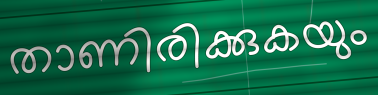
താണിരിക്കുകയും